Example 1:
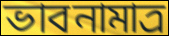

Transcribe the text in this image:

ভাবনামাত্র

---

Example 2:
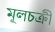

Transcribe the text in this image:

মূলচক্রী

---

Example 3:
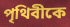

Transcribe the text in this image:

পৃথিবীকে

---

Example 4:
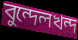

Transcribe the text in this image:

বুন্দেলখন্দ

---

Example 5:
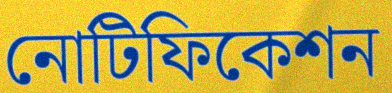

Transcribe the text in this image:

নোটিফিকেশন